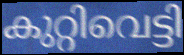
കുറ്റിവെട്ടി